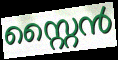
സ്റ്റൈൻ